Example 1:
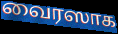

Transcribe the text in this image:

வைரஸாக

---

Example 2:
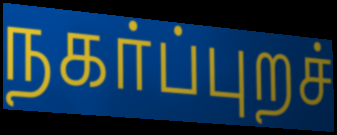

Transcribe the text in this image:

நகர்ப்புறச்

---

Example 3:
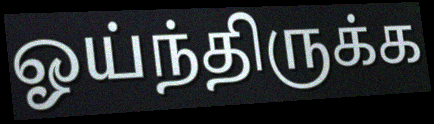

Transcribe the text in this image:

ஓய்ந்திருக்க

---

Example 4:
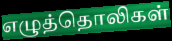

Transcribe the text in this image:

எழுத்தொலிகள்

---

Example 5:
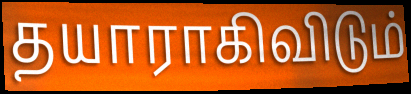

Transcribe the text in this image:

தயாராகிவிடும்